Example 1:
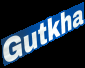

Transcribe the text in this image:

Gutkha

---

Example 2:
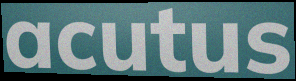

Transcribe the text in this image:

acutus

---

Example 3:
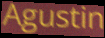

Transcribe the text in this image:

Agustin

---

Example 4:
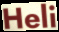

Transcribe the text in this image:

Heli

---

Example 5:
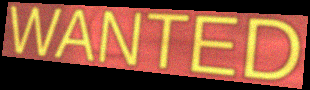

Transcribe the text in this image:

WANTED